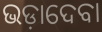
ଭଡ଼ାଦେବା